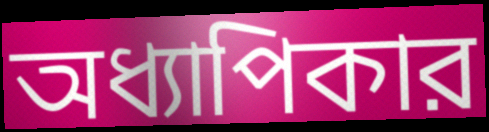
অধ্যাপিকার